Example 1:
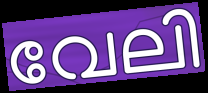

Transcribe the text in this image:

വേലി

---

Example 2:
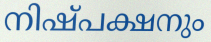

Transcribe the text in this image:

നിഷ്പക്ഷനും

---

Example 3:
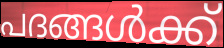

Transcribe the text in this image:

പദങ്ങൾക്ക്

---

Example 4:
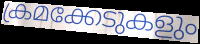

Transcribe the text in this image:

ക്രമക്കേടുകളും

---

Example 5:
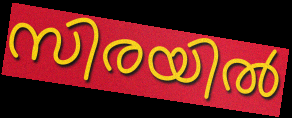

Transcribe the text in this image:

സിരയിൽ